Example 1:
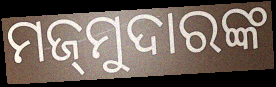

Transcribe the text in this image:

ମଜ୍‍ମୁଦାରଙ୍କ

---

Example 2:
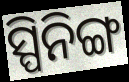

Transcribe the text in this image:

ସ୍ପିନିଙ୍ଗ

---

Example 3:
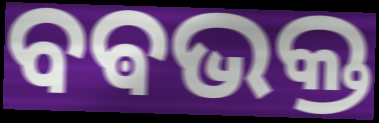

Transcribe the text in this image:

ବଵଭକ୍ତ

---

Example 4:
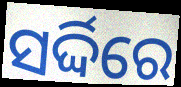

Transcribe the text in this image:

ସର୍ଦ୍ଦିରେ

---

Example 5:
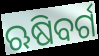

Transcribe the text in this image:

ଋଷିବର୍ଗ